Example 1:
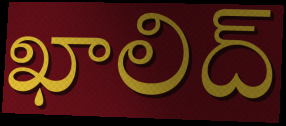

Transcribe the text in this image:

ఖాలిద్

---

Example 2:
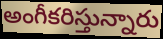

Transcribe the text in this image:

అంగీకరిస్తున్నారు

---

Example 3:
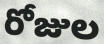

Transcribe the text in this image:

రోజుల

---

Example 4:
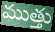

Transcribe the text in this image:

ముత్తు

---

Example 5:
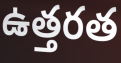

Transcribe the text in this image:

ఉత్తరత